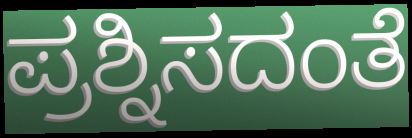
ಪ್ರಶ್ನಿಸದಂತೆ